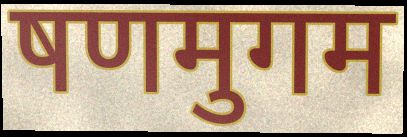
षणमुगम